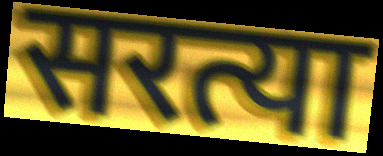
सरत्या